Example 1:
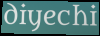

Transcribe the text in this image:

diyechi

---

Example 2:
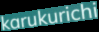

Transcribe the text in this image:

karukurichi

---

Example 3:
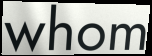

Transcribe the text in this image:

whom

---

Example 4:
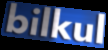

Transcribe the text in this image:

bilkul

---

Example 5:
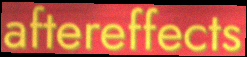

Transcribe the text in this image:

aftereffects